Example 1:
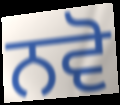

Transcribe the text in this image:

ਨਵੋ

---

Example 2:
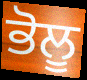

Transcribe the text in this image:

ਭੋਲੂ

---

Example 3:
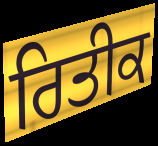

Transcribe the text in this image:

ਰਿਤੀਕ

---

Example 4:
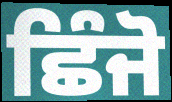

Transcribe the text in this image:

ਛਿੰਜੋ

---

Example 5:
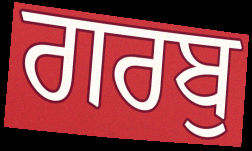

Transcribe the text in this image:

ਗਰਬੁ